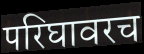
परिघावरच